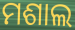
ମଶାଲ